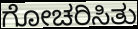
ಗೋಚರಿಸಿತು